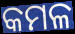
କମଳ